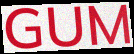
GUM